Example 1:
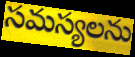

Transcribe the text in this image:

సమస్యలను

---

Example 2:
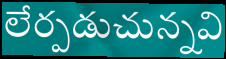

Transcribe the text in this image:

లేర్పడుచున్నవి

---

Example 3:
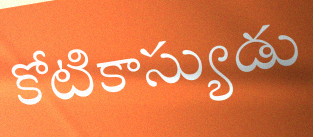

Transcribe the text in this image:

కోటికాస్యుడు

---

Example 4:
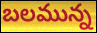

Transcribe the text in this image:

బలమున్న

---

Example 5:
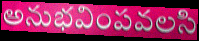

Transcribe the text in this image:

అనుభవింపవలసి